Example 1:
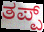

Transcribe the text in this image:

ತಪ್ಪ್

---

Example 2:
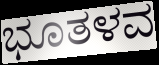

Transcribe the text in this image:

ಭೂತಳವ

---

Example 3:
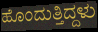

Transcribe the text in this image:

ಹೊಂದುತ್ತಿದ್ದಳು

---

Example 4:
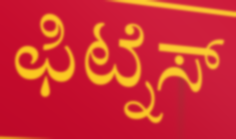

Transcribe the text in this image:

ಫಿಟ್ನೆಸ್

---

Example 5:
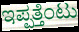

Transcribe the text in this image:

ಇಪ್ಪತ್ತೆಂಟು